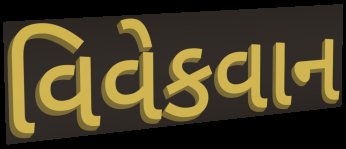
વિવેકવાન